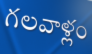
గలవాళ్లం